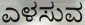
ಎಳಸುವ